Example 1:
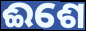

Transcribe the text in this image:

ଈଶେ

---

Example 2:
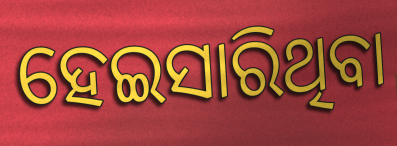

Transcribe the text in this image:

ହେଇସାରିଥିବା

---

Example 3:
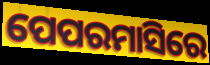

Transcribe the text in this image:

ପେପରମାସିରେ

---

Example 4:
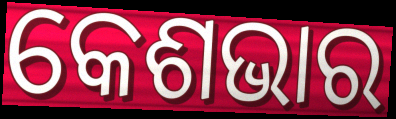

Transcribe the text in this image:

କେଶଭାର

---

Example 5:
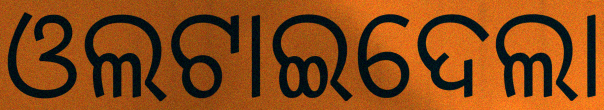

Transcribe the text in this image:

ଓଲଟାଇଦେଲା